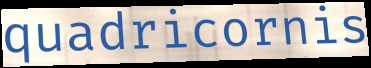
quadricornis